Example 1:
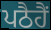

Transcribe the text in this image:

ਪਠੈਹੈਂ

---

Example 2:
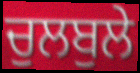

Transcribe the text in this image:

ਚੁਲਬੁਲੇ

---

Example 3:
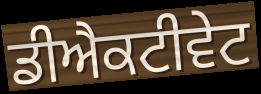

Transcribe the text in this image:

ਡੀਐਕਟੀਵੇਟ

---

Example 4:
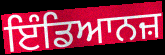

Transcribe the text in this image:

ਇੰਡਿਆਨਜ਼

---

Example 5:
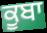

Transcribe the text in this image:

ਕੂਬਾ